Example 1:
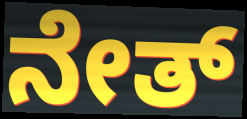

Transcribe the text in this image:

ನೇತ್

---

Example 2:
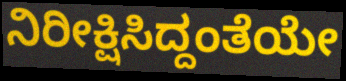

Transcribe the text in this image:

ನಿರೀಕ್ಷಿಸಿದ್ದಂತೆಯೇ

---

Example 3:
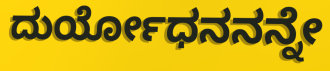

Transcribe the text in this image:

ದುರ್ಯೋಧನನನ್ನೇ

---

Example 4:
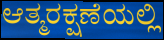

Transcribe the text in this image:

ಆತ್ಮರಕ್ಷಣೆಯಲ್ಲಿ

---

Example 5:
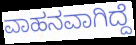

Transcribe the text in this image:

ವಾಹನವಾಗಿದ್ದೆ